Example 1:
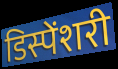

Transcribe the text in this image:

डिस्पेंशरी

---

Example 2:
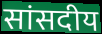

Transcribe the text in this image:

सांसदीय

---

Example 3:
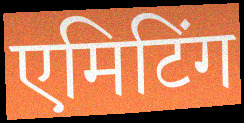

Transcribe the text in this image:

एमिटिंग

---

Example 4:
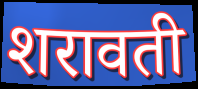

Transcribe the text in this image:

शरावती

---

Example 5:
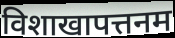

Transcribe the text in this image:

विशाखापत्तनम